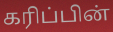
கரிப்பின்